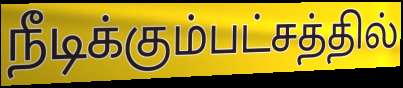
நீடிக்கும்பட்சத்தில்